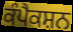
ਕੰਪੈਕਸ਼ਨ